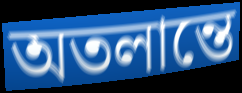
অতলান্তে